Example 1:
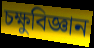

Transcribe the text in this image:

চক্ষুবিজ্ঞান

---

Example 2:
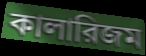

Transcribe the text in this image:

কালারিজম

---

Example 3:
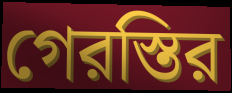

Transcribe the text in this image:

গেরস্তির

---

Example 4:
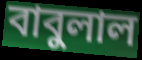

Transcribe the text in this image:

বাবুলাল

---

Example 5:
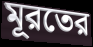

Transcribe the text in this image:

মূরতের